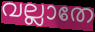
വല്ലാതേ